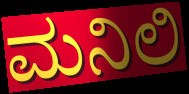
ಮನಿಲಿ